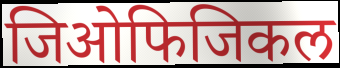
जिओफिजिकल